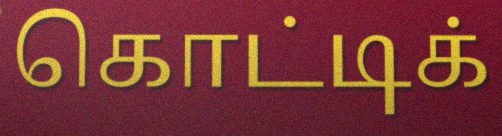
கொட்டிக்